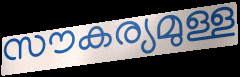
സൗകര്യമുള്ള